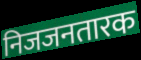
निजजनतारक